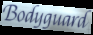
Bodyguard